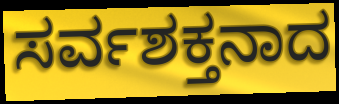
ಸರ್ವಶಕ್ತನಾದ